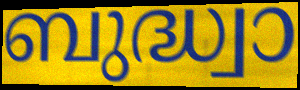
ബുദ്ധ്വാ